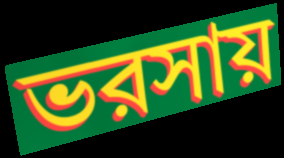
ভরসায়